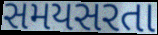
સમયસરતા